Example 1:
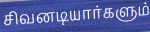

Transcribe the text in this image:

சிவனடியார்களும்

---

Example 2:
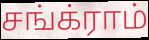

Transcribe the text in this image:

சங்க்ராம்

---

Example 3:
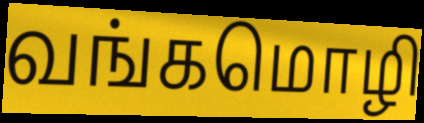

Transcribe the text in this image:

வங்கமொழி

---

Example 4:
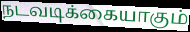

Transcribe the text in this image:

நடவடிக்கையாகும்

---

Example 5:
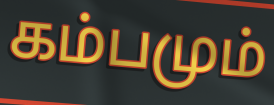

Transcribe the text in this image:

கம்பமும்